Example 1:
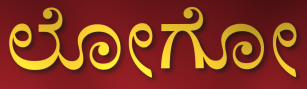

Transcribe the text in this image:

ಲೋಗೋ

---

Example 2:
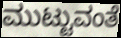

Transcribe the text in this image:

ಮುಟ್ಟುವಂತೆ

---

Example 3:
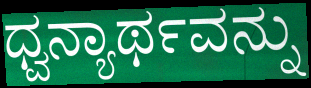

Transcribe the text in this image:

ಧ್ವನ್ಯಾರ್ಥವನ್ನು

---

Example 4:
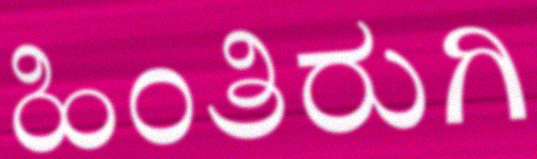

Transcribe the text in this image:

ಹಿಂತಿರುಗಿ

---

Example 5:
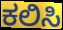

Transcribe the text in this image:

ಕಲಿಸಿ